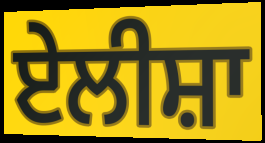
ਏਲੀਸ਼ਾ